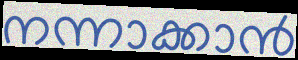
നന്നാക്കാൻ